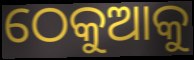
ଠେକୁଆକୁ